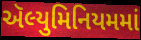
ઍલ્યુમિનિયમમાં